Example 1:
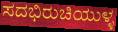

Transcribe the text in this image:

ಸದಭಿರುಚಿಯುಳ್ಳ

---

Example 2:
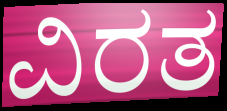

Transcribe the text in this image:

ವಿರತ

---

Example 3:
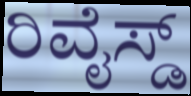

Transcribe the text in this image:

ರಿವೈಸ್ಡ್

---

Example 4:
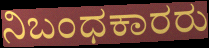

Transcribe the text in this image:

ನಿಬಂಧಕಾರರು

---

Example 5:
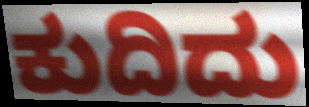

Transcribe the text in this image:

ಕುದಿದು